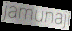
jamunaji